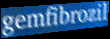
gemfibrozil